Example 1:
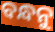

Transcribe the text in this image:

ବନ୍ଧନୁ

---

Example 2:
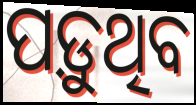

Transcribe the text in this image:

ପଡ଼ୁଥିବ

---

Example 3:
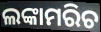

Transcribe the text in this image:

ଲଙ୍କାମରିଚ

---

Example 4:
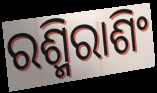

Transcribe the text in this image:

ରଶ୍ମିରାଶିଂ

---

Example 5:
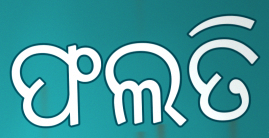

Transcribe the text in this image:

ଫଲତି